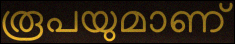
രൂപയുമാണ്